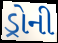
ડ્રોની